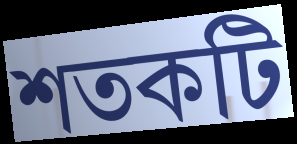
শতকটি